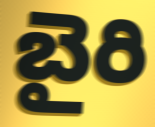
బైరి